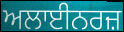
ਅਲਾਈਨਰਜ਼